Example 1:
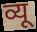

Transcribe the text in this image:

व्यू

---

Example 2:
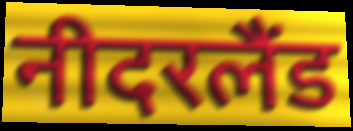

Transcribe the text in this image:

नीदरलैंड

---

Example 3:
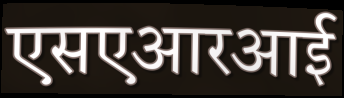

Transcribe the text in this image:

एसएआरआई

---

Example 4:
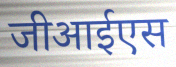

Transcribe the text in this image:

जीआईएस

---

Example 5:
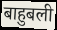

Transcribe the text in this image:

बाहुबली